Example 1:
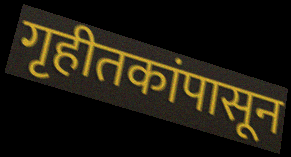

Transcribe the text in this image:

गृहीतकांपासून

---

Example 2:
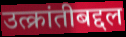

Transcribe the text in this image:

उत्क्रांतीबद्दल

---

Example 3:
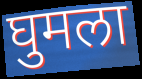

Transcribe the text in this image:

घुमला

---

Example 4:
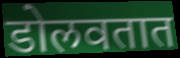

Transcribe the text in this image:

डोलवतात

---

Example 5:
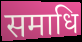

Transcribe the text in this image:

समाधि